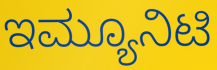
ಇಮ್ಯೂನಿಟಿ